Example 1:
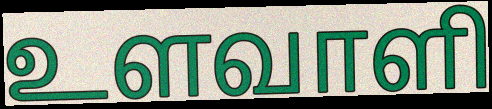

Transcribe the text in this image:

உளவாளி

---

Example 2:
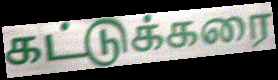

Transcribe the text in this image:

கட்டுக்கரை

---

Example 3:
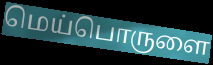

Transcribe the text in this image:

மெய்பொருளை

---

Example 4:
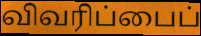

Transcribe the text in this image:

விவரிப்பைப்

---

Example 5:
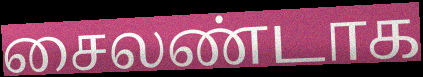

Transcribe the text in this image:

சைலண்டாக